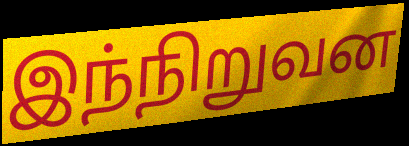
இந்நிறுவன